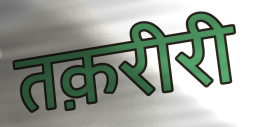
तक़रीरी